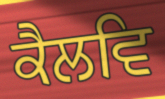
ਕੈਲਵਿ